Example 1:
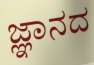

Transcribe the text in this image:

ಜ್ಞಾನದ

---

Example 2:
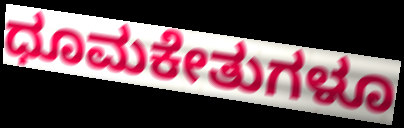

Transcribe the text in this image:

ಧೂಮಕೇತುಗಳೂ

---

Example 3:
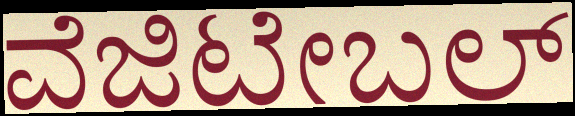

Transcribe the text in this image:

ವೆಜಿಟೇಬಲ್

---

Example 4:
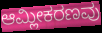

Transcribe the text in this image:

ಆಮ್ಲೀಕರಣವು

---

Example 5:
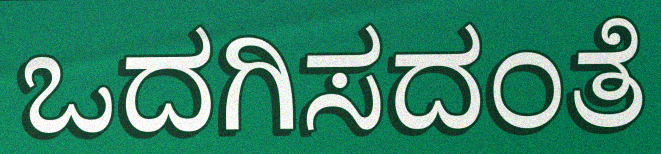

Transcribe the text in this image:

ಒದಗಿಸದಂತೆ